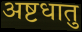
अष्टधातु